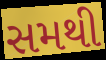
સમથી